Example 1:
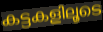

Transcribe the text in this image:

കട്ടകളിലൂടെ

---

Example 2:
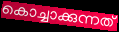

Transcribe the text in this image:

കൊച്ചാക്കുന്നത്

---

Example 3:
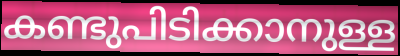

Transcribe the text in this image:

കണ്ടുപിടിക്കാനുള്ള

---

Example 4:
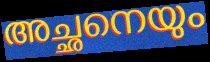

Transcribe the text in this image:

അച്ഛനെയും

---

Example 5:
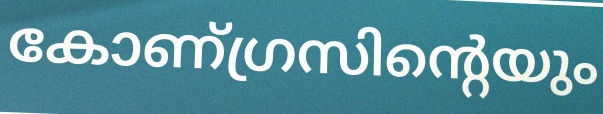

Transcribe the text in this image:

കോണ്ഗ്രസിന്റെയും